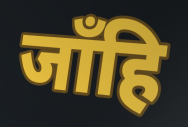
जाँहि